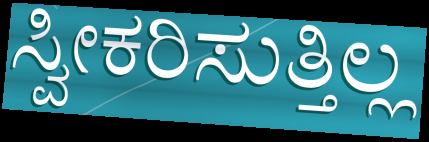
ಸ್ವೀಕರಿಸುತ್ತಿಲ್ಲ